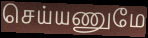
செய்யணுமே